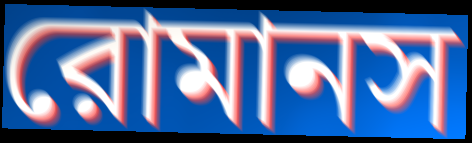
রোমানস